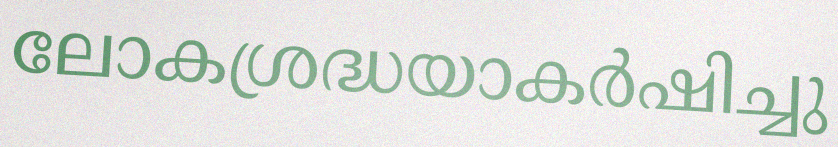
ലോകശ്രദ്ധയാകർഷിച്ചു